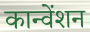
कान्वेंशन